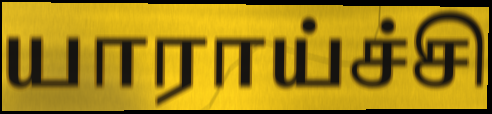
யாராய்ச்சி